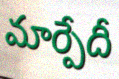
మార్పేదీ